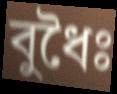
বুধৈঃ